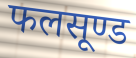
फलसूण्ड